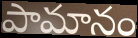
పామానం